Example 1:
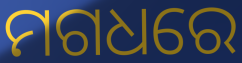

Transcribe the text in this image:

ମଗଧରେ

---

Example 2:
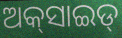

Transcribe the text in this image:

ଅକ୍‌ସାଇଡ୍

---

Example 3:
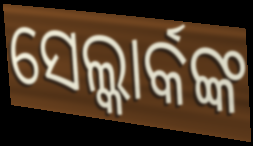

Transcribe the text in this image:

ସେଲ୍କାର୍କଙ୍କ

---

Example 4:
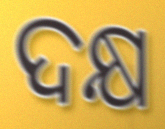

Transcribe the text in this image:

ଦକ୍ଷ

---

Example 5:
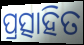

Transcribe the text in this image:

ପ୍ରତ୍ସାହିତ